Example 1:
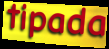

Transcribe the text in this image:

tipada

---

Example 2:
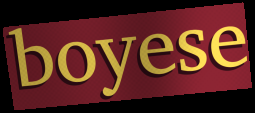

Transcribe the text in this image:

boyese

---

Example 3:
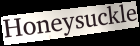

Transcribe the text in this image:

Honeysuckle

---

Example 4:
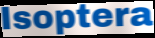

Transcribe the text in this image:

Isoptera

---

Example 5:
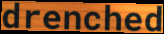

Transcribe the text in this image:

drenched